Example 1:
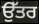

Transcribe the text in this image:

ਉੱਤਰ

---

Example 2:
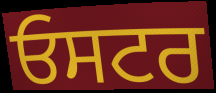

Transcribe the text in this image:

ਓਸਟਰ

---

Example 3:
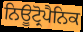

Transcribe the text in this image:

ਨਿਊਟ੍ਰੋਪੈਨਿਕ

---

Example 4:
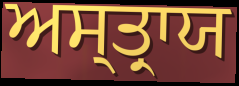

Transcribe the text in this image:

ਅਸ੍ਤ੍ਰਾਯ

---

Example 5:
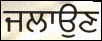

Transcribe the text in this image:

ਜਲਾਉਣ